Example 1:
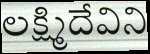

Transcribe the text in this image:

లక్ష్మిదేవిని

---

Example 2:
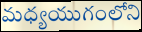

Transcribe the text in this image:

మధ్యయుగంలోని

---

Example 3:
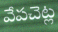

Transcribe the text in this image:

వేపచెట్ల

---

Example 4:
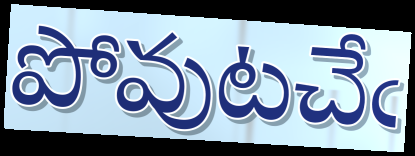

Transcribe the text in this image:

పోవుటచేఁ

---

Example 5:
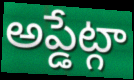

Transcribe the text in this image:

అప్డేట్గా